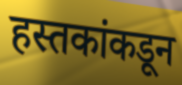
हस्तकांकडून